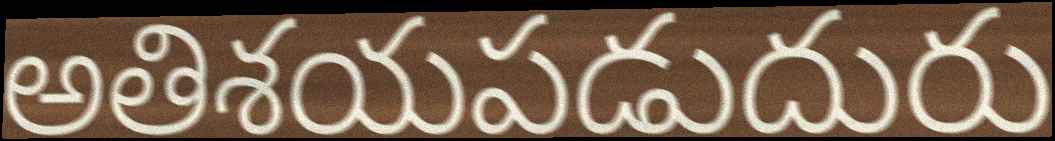
అతిశయపడుదురు